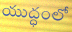
యుద్ధంలో